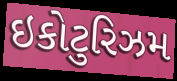
ઇકોટુરિઝમ